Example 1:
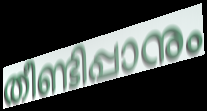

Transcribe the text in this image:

തീണ്ടിപ്പാനും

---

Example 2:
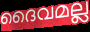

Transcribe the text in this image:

ദൈവമല്ല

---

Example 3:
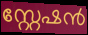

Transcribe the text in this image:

സ്റ്റേഷൻ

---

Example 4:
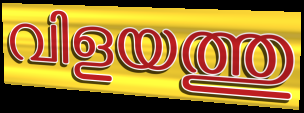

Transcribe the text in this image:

വിളയത്തു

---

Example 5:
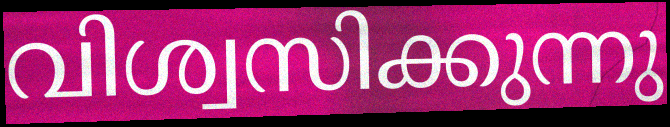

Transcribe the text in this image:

വിശ്വസിക്കുന്നു